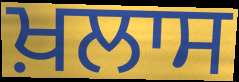
ਖ਼ਲਾਸ